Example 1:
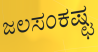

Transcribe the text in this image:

ಜಲಸಂಕಷ್ಟ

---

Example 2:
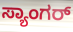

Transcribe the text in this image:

ಸ್ಯಾಂಗರ್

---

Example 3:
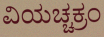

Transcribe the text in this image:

ವಿಯಚ್ಚಕ್ರಂ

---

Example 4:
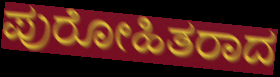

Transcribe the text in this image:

ಪುರೋಹಿತರಾದ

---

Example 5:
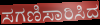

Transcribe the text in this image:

ಸಗಣಿಸಾರಿಸಿದ